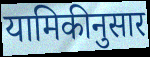
यामिकीनुसार